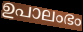
ഉപാലംഭം